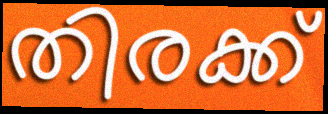
തിരക്ക്